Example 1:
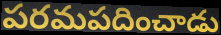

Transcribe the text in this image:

పరమపదించాడు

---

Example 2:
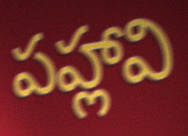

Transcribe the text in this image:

పహ్లావి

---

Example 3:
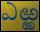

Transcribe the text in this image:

ఎఱ్ఱ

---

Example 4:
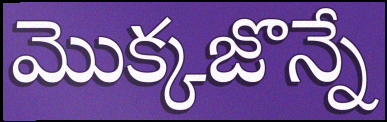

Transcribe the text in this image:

మొక్కజొన్నే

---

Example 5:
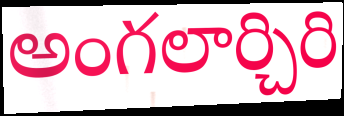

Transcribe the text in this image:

అంగలార్చిరి